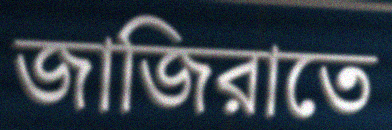
জাজিরাতে